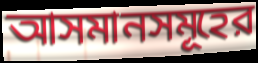
আসমানসমূহের